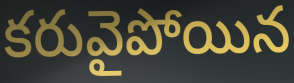
కరువైపోయిన